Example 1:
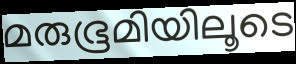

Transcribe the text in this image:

മരുഭൂമിയിലൂടെ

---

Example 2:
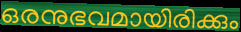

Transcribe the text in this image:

ഒരനുഭവമായിരിക്കും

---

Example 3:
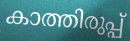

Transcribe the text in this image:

കാത്തിരുപ്പ്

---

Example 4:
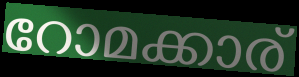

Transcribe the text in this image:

റോമക്കാര്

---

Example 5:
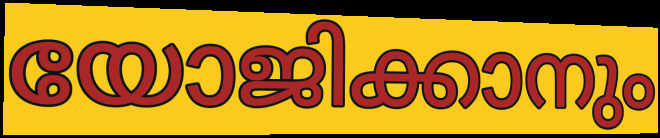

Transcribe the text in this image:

യോജിക്കാനും